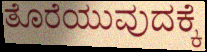
ತೊರೆಯುವುದಕ್ಕೆ